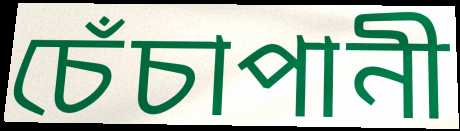
চেঁচাপানী